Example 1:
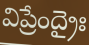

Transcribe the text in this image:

విప్రేంద్రైః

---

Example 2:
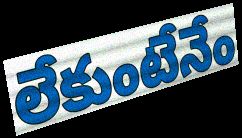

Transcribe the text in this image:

లేకుంటేనేం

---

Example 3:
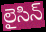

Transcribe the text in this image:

లైసిన్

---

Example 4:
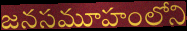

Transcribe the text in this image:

జనసమూహంలోని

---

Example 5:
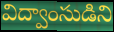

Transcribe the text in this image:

విద్వాంసుడిని